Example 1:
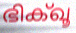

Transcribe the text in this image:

ഭിക്ഖൂ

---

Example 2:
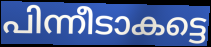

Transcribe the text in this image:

പിന്നീടാകട്ടെ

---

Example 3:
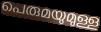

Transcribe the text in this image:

പെരുമയുമുള്ള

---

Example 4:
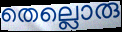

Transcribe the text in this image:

തെല്ലൊരു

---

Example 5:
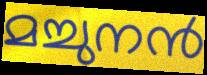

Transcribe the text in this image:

മച്ചുനൻ